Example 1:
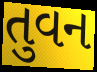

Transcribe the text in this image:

તુવન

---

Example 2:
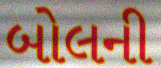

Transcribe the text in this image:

બોલની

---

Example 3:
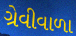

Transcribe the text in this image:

ગ્રેવીવાળા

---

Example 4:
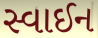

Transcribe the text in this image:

સ્વાઈન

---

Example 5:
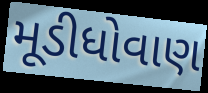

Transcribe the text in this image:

મૂડીધોવાણ